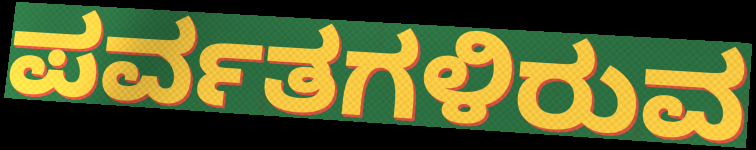
ಪರ್ವತಗಳಿರುವ